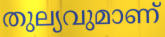
തുല്യവുമാണ്